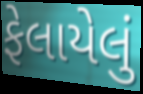
ફેલાયેલું